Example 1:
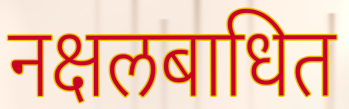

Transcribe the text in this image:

नक्षलबाधित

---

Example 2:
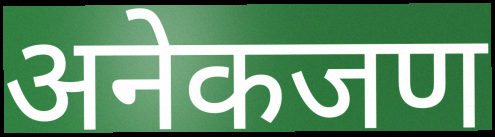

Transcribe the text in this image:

अनेकजण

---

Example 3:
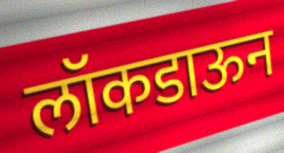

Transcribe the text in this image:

लॉकडाऊन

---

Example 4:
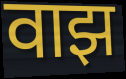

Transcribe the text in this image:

वाझ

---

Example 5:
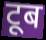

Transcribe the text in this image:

टूब